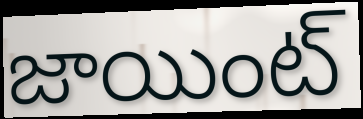
జాయింట్